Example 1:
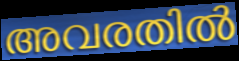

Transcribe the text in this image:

അവരതിൽ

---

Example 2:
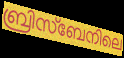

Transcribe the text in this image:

ബ്രിസ്ബേനിലെ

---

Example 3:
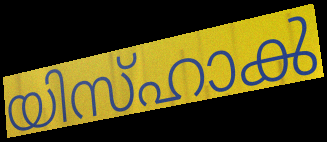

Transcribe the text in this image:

യിസ്ഹാൿ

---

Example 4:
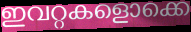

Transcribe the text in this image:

ഇവറ്റകളൊക്കെ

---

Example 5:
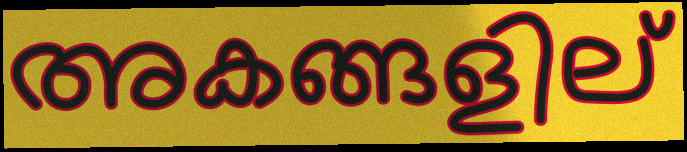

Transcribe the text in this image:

അകങ്ങളില്